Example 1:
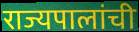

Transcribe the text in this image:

राज्यपालांची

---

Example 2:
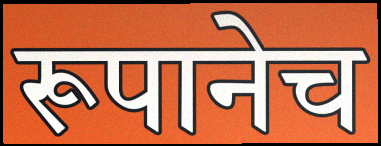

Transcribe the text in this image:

रूपानेच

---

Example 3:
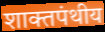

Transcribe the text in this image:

शाक्तपंथीय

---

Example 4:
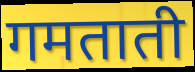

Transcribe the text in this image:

गमताती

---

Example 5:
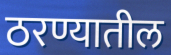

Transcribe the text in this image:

ठरण्यातील